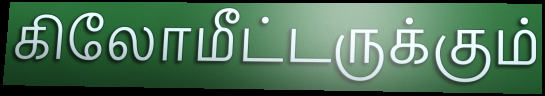
கிலோமீட்டருக்கும்